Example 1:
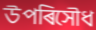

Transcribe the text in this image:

উপৰিসৌধ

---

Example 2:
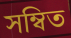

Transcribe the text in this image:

সম্বিত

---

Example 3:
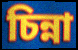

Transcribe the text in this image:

চিন্না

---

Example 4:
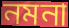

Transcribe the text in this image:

নমনা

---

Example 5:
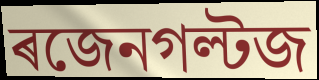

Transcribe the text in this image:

ৰজেনগল্টজ